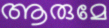
ആരുമേ